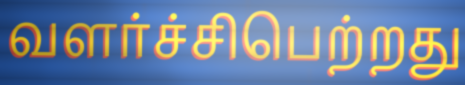
வளர்ச்சிபெற்றது